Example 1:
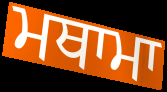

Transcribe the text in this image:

ਮਥਾਮਾ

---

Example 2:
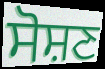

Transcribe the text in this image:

ਸੋਸ਼ਣ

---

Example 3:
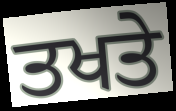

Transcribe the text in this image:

ਤਖਤੇ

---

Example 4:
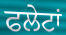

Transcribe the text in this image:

ਫਲੇਟਾਂ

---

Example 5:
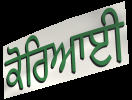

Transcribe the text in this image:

ਕੋਰਿਆਈ